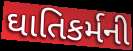
ઘાતિકર્મની